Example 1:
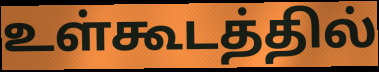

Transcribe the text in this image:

உள்கூடத்தில்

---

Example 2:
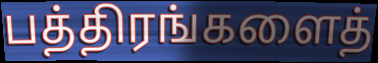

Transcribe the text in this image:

பத்திரங்களைத்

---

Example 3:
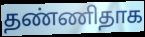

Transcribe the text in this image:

தண்ணிதாக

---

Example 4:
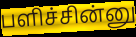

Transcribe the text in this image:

பளிச்சின்னு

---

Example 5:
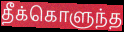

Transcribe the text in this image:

தீக்கொளுந்த